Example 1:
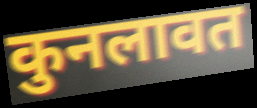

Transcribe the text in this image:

कुनलावत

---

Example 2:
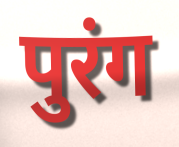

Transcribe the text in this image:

पुरंग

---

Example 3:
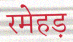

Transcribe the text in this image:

रमेहड़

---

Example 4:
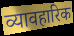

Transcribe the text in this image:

व्यावहारिक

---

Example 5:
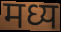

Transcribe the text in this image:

मध्य